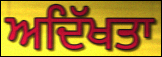
ਅਦਿੱਖਤਾ